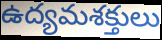
ఉద్యమశక్తులు